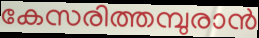
കേസരിത്തമ്പുരാൻ